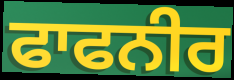
ਫਾਫਨੀਰ